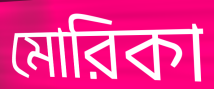
মোরিকা